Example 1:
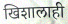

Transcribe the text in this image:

खिशालाही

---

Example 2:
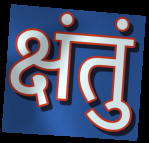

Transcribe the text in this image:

क्षंतुं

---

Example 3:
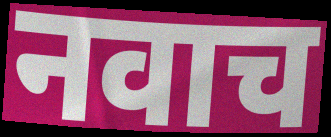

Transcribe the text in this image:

नवाच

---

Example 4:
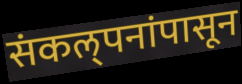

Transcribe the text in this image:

संकल्पनांपासून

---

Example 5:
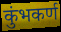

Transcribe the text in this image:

कुंभकर्ण